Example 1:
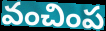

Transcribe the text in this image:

వంచింప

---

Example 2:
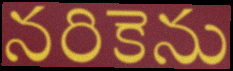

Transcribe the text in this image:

నరికెను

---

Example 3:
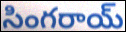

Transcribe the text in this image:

సింగరాయ్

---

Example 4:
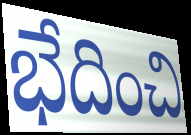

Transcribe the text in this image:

భేదించి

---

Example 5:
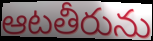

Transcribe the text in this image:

ఆటతీరును